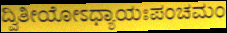
ದ್ವಿತೀಯೋಽಧ್ಯಾಯಃಪಂಚಮಂ